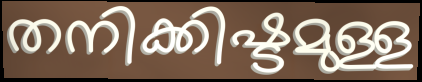
തനിക്കിഷ്ടമുള്ള